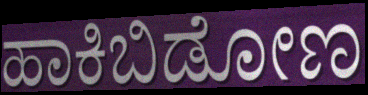
ಹಾಕಿಬಿಡೋಣ